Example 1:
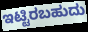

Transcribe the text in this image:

ಇಟ್ಟಿರಬಹುದು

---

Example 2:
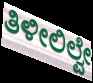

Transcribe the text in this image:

ತಿಳೀಲಿಲ್ವೇ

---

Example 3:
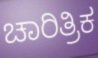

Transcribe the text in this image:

ಚಾರಿತ್ರಿಕ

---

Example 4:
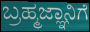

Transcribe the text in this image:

ಬ್ರಹ್ಮಜ್ಞಾನಿಗೆ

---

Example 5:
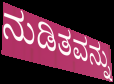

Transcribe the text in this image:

ನುಡಿತವನ್ನು